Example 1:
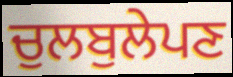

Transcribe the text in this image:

ਚੁਲਬੁਲੇਪਣ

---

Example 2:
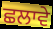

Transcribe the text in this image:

ਛਲਾਵੇ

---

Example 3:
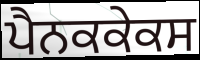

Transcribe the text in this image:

ਪੈਨਕਕੇਕਸ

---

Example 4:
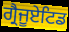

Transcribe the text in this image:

ਗ੍ਰੈਜੂਏਟਿਡ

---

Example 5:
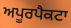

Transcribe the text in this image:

ਅਪੂਰਪੈਕਟਾ